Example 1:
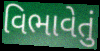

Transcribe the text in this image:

વિભાવેતું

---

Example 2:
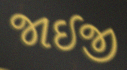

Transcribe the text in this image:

જાઈજી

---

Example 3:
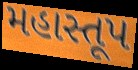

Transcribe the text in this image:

મહાસ્તૂપ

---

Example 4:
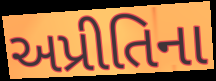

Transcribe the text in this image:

અપ્રીતિના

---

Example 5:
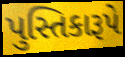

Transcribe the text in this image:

પુસ્તિકારૂપે